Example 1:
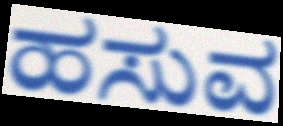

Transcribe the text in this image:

ಹಸುವ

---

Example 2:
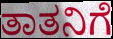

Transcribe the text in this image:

ತಾತನಿಗೆ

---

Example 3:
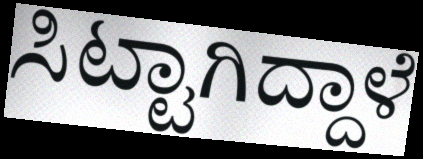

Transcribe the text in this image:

ಸಿಟ್ಟಾಗಿದ್ದಾಳೆ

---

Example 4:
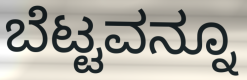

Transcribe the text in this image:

ಬೆಟ್ಟವನ್ನೂ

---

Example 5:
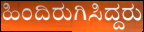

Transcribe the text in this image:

ಹಿಂದಿರುಗಿಸಿದ್ದರು